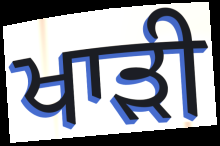
ਖਾੜੀ